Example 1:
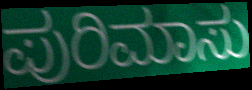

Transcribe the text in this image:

ಪುರಿಮಾಸು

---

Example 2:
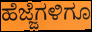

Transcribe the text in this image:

ಹೆಜ್ಜೆಗಳಿಗೂ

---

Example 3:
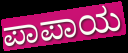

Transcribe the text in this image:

ಪಾಪಾಯ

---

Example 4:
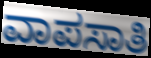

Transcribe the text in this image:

ವಾಪಸಾತಿ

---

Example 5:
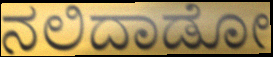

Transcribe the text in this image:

ನಲಿದಾಡೋ